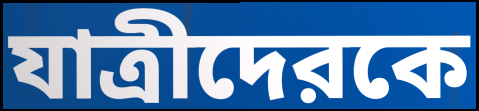
যাত্রীদেরকে